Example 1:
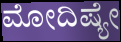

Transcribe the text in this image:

ಮೋದಿಷ್ಯೇ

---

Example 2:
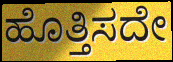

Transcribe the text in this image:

ಹೊತ್ತಿಸದೇ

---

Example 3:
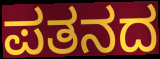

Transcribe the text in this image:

ಪತನದ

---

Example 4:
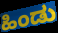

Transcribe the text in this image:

ಹಿಂಡು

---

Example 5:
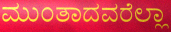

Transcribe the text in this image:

ಮುಂತಾದವರೆಲ್ಲಾ